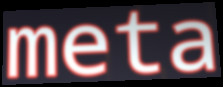
meta